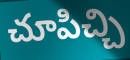
చూపిచ్చి